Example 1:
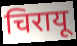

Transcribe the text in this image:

चिरायू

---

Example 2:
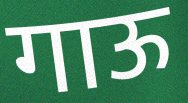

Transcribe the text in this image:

गाऊ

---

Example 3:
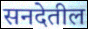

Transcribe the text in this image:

सनदेतील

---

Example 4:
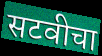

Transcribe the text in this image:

सटवीचा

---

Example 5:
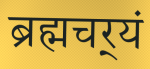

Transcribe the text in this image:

ब्रह्मचर्यं